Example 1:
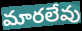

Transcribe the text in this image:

మారలేవు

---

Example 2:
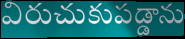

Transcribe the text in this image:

విరుచుకుపడ్డాను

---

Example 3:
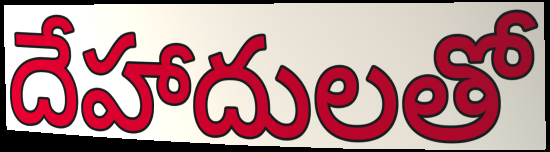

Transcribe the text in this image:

దేహాదులతో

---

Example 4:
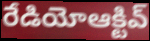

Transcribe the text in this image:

రేడియోఆక్టివ్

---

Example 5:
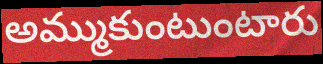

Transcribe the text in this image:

అమ్ముకుంటుంటారు